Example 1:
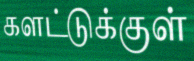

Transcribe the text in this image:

களட்டுக்குள்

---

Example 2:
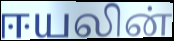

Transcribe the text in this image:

ஈயலின்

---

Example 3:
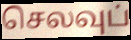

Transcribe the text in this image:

செலவுப்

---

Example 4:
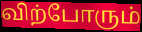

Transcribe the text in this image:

விற்போரும்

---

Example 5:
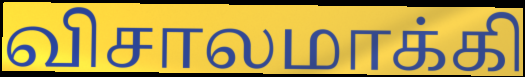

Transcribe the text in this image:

விசாலமாக்கி